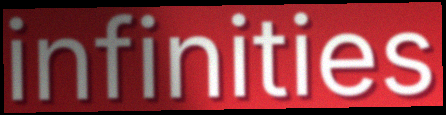
infinities